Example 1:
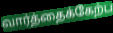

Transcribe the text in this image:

வார்த்தைக்கேற்ப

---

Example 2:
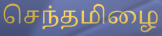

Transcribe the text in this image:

செந்தமிழை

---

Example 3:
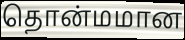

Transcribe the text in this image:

தொன்மமான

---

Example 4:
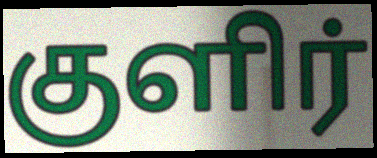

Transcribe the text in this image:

குளிர்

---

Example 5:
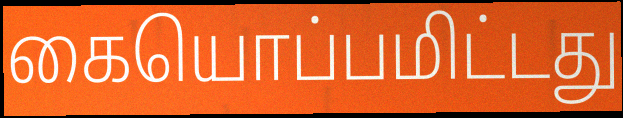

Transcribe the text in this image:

கையொப்பமிட்டது